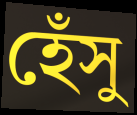
হেঁসু